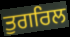
ਤੁਗਰਿਲ